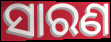
ସାରଣ